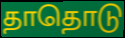
தாதொடு